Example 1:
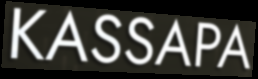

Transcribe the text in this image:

KASSAPA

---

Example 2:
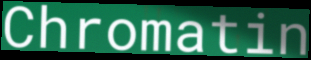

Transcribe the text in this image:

Chromatin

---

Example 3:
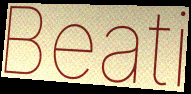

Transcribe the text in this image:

Beati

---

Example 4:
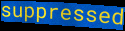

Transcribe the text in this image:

suppressed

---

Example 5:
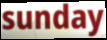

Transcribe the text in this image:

sunday